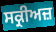
ਸਕ੍ਰੀਅਜ਼